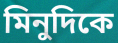
মিনুদিকে